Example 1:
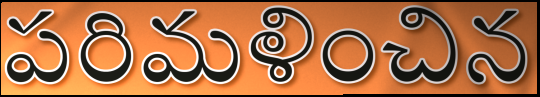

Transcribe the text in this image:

పరిమళించిన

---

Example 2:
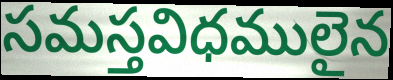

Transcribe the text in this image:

సమస్తవిధములైన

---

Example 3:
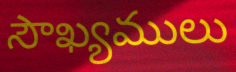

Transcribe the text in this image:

సౌఖ్యములు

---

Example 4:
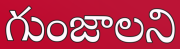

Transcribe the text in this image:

గుంజాలని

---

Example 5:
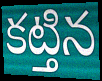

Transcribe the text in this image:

కట్తిన